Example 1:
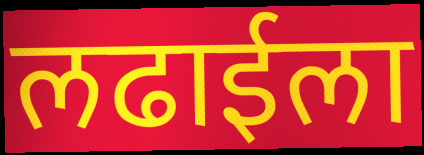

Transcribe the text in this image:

लढाईला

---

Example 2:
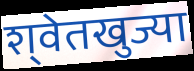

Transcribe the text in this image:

श्वेतखुज्या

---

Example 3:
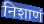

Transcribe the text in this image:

निशाणं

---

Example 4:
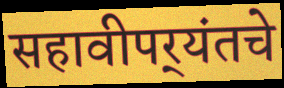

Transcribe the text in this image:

सहावीपर्यंतचे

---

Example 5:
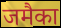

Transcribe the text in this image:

जमैका